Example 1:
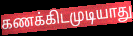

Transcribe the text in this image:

கணக்கிடமுடியாது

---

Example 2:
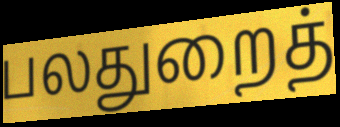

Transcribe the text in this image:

பலதுறைத்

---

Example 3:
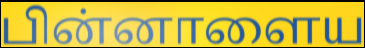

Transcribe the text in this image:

பின்னாளைய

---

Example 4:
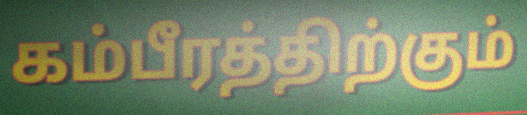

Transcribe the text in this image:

கம்பீரத்திற்கும்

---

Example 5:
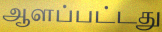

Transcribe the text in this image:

ஆளப்பட்டது